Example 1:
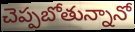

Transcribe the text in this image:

చెప్పబోతున్నానో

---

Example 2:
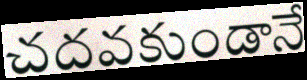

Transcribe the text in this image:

చదవకుండానే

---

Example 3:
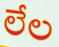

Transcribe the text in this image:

లేల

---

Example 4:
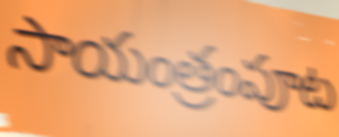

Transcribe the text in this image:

సాయంత్రంపూట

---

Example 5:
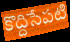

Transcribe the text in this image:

కొద్దిసేపటి